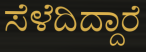
ಸೆಳೆದಿದ್ದಾರೆ